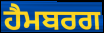
ਹੈਮਬਰਗ